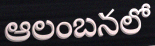
ఆలంబనలో